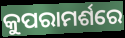
କୁପରାମର୍ଶରେ